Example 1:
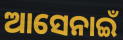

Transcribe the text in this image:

ଆସେନାଇଁ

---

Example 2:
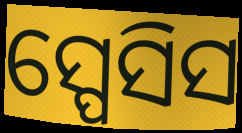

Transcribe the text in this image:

ସ୍ପେସିସ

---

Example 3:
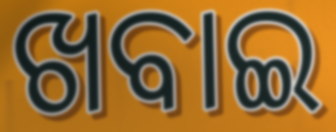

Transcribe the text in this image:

ଖବାଇ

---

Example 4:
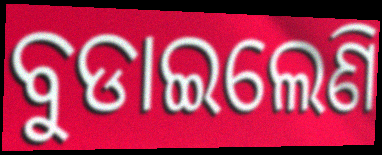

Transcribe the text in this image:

ବୁଡାଇଲେଣି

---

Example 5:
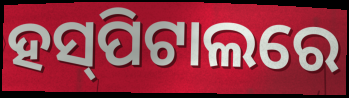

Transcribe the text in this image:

ହସ୍‍ପିଟାଲରେ